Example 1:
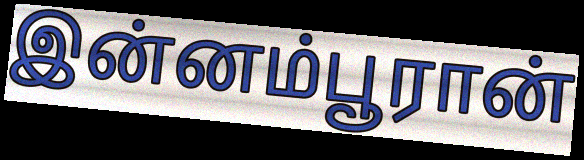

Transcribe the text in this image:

இன்னம்பூரான்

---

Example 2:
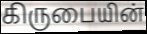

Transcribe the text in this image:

கிருபையின்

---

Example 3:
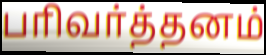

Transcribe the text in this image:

பரிவர்த்தனம்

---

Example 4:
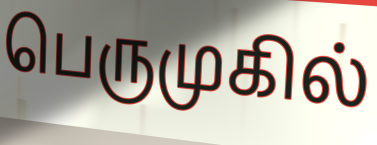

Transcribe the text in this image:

பெருமுகில்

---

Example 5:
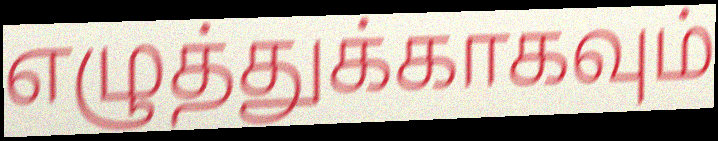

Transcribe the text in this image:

எழுத்துக்காகவும்